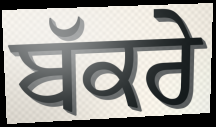
ਬੱਕਰੇ